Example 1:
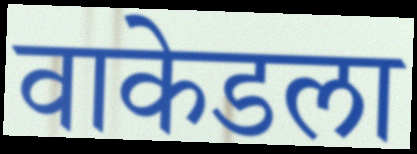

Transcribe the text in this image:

वाकेडला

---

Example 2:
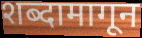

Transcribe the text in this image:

शब्दामागून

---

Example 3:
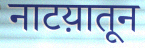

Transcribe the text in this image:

नाटय़ातून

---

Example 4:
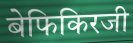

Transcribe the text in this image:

बेफिकिरजी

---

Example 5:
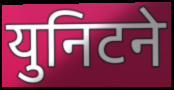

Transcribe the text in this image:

युनिटने